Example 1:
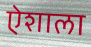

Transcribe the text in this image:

ऐशाला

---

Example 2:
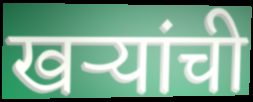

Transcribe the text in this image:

खऱ्यांची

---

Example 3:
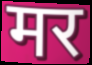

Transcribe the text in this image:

मर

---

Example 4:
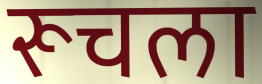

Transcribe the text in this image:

रूचला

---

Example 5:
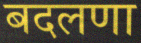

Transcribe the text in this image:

बदलणा